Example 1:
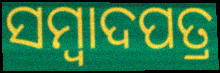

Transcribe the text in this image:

ସମ୍ବାଦପତ୍ର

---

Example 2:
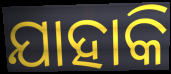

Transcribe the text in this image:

ଯାହାକି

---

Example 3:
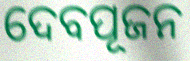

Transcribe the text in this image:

ଦେବପୂଜନ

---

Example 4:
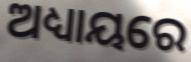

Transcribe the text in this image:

ଅଧ୍ୟାୟରେ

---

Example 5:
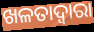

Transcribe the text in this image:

ଖଳତାଦ୍ଵାରା